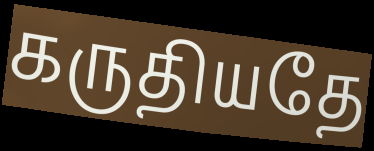
கருதியதே